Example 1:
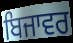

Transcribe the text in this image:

ਬਿਜਾਵਰ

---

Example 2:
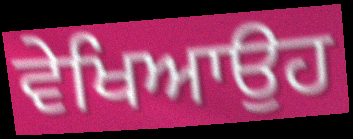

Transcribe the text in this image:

ਵੇਖਿਆਉਹ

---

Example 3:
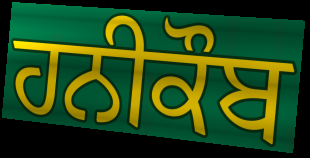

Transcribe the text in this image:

ਹਨੀਕੌਬ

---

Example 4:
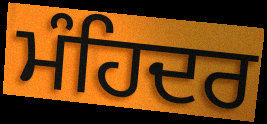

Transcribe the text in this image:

ਮੰਹਿਦਰ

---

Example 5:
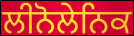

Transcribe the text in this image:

ਲੀਨੋਲੇਨਿਕ